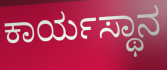
ಕಾರ್ಯಸ್ಥಾನ